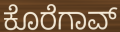
ಕೊರೆಗಾವ್